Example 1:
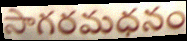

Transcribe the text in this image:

సాగరమధనం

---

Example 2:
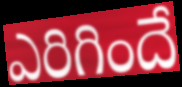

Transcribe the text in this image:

ఎరిగిందే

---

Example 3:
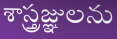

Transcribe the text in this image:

శాస్త్రజ్ఞులను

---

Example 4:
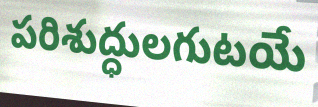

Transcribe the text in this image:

పరిశుద్ధులగుటయే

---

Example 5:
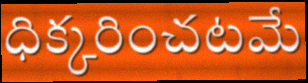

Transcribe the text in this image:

ధిక్కరించటమే